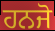
ਹਨਜੋ